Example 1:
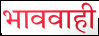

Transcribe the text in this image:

भाववाही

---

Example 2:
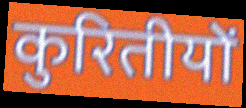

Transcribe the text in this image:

कुरितीयों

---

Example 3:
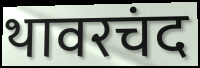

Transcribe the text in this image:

थावरचंद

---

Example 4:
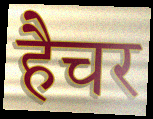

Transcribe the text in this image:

हैचर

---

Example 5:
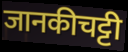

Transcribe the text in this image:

जानकीचट्टी